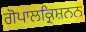
ਗੋਪਾਲਕ੍ਰਿਸ਼ਨਨ